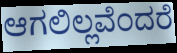
ಆಗಲಿಲ್ಲವೆಂದರೆ